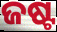
ଜଷ୍ଟ